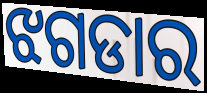
ଝଗଡାର